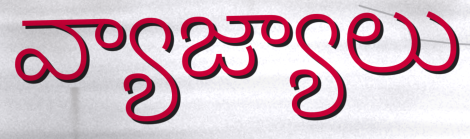
వ్యాజ్యాలు